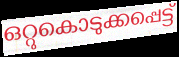
ഒറ്റുകൊടുക്കപ്പെട്ട്